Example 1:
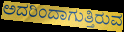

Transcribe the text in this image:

ಅದರಿಂದಾಗುತ್ತಿರುವ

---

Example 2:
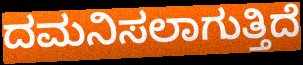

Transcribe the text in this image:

ದಮನಿಸಲಾಗುತ್ತಿದೆ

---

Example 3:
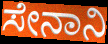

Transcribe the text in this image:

ಸೇನಾನಿ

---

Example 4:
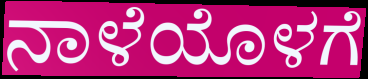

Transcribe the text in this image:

ನಾಳೆಯೊಳಗೆ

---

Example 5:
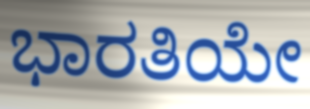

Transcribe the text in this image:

ಭಾರತಿಯೇ